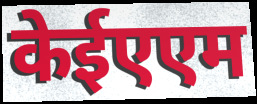
केईएएम